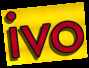
ivo